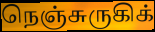
நெஞ்சுருகிக்